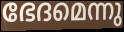
ഭേദമെന്നു